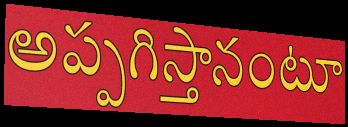
అప్పగిస్తానంటూ